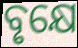
ବୃକ୍ଷେ